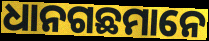
ଧାନଗଛମାନେ